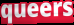
queers